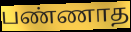
பண்ணாத